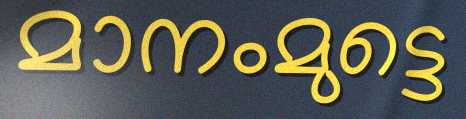
മാനംമുട്ടെ